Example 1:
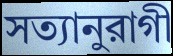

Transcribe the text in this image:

সত্যানুরাগী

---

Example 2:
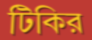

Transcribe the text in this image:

টিকির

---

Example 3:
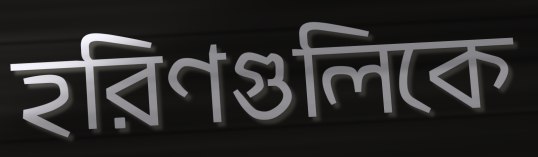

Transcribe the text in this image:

হরিণগুলিকে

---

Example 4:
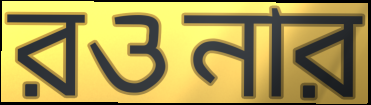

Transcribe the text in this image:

রওনার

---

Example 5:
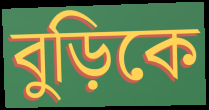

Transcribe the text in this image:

বুড়িকে